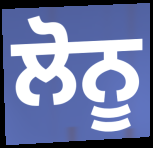
ਲੋਨੂ